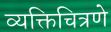
व्यक्तिचित्रणे